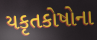
યકૃતકોષોના